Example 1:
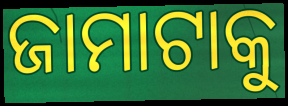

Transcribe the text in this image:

ଜାମାଟାକୁ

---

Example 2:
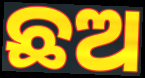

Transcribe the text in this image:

ଛଅ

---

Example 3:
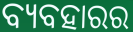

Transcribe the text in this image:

ବ୍ୟବହାରର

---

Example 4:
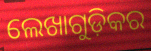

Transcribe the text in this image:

ଲେଖାଗୁଡ଼ିକର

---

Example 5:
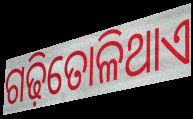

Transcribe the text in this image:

ଗଢ଼ିତୋଳିଥାଏ